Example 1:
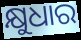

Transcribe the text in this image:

କ୍ଷୁଧାର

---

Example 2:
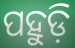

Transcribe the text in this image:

ପହୁଡ଼ି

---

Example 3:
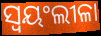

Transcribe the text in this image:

ସ୍ବୟଂଲୀଳା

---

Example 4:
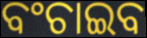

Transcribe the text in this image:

ବଂଚାଇବ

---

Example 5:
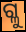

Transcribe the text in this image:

ଗ୍ଳୁ